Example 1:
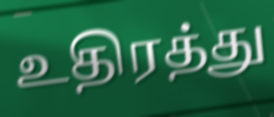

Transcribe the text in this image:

உதிரத்து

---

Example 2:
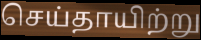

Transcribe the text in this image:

செய்தாயிற்று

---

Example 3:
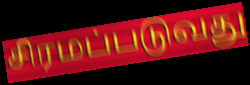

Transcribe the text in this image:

சிரமப்படுவது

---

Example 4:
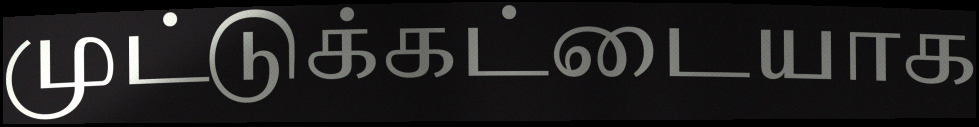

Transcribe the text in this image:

முட்டுக்கட்டையாக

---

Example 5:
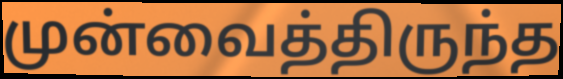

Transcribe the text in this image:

முன்வைத்திருந்த